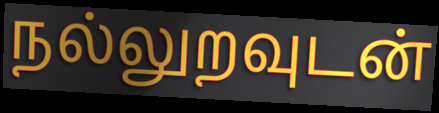
நல்லுறவுடன்